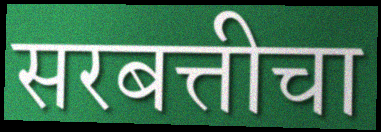
सरबत्तीचा